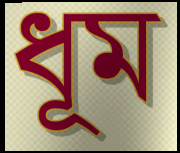
ধূম